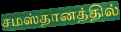
சமஸ்தானத்தில்